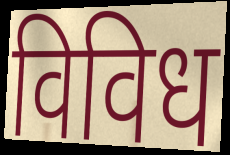
विविध